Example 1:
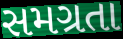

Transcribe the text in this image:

સમગ્રતા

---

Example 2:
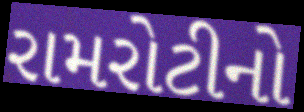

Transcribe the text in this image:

રામરોટીનો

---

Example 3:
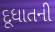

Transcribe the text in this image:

દૂધાતની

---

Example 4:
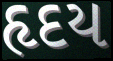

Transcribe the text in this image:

હૃદય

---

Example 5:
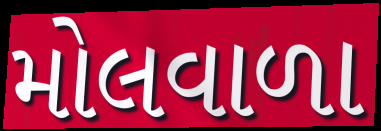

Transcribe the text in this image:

મોલવાળા